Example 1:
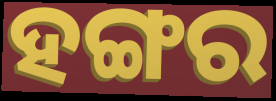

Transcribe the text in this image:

ହଙ୍ଗର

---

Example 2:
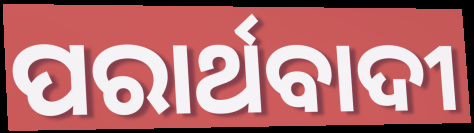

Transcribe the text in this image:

ପରାର୍ଥବାଦୀ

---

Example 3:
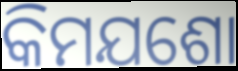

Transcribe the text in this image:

କିମଯଶୋ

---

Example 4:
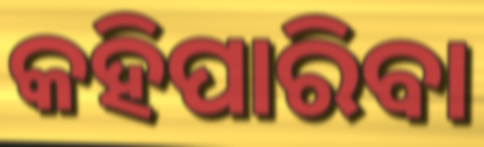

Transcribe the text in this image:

କହିପାରିବା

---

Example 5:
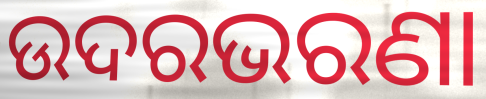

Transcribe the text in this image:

ଉଦରଭରଣା